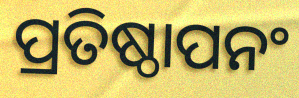
ପ୍ରତିଷ୍ଠାପନଂ